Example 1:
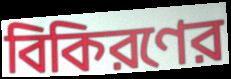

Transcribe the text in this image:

বিকিরণের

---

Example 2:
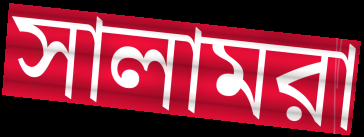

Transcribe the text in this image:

সালামরা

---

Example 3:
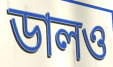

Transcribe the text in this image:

ডালও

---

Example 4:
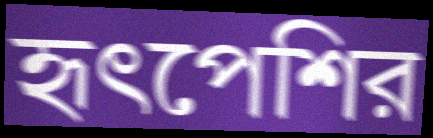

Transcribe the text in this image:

হৃৎপেশির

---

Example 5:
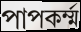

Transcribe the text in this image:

পাপকর্ম্ম